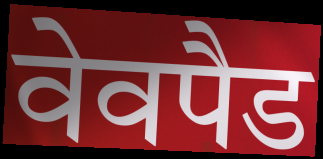
वेवपैड